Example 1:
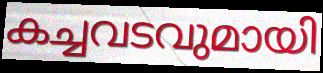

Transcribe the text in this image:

കച്ചവടവുമായി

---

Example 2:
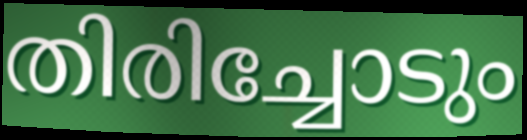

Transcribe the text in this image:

തിരിച്ചോടും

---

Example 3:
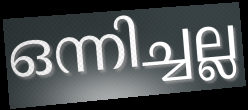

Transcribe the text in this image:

ഒന്നിച്ചല്ല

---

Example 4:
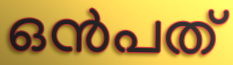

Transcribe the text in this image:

ഒൻപത്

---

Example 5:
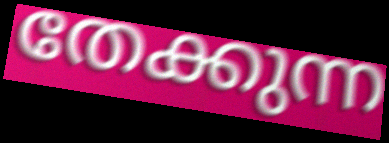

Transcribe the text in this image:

തേക്കുന്ന